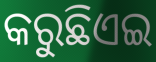
କରୁଛିଏଇ